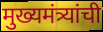
मुख्यमंत्र्यांची